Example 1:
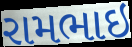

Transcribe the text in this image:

રામભાઇ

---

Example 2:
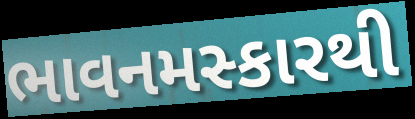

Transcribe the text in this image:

ભાવનમસ્કારથી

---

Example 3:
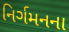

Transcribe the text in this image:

નિર્ગમનના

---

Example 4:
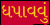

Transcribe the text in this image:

ધપાવવું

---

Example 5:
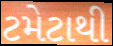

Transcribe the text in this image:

ટમેટાથી